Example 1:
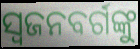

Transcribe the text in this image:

ସ୍ଵଜନବର୍ଗଙ୍କୁ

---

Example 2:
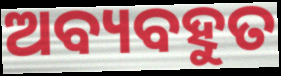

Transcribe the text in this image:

ଅବ୍ୟବହୁତ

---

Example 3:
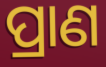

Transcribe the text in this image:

ପ୍ରାଣ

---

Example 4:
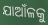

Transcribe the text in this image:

ଯାଆଁଳକୁ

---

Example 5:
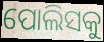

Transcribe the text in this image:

ପୋଲିସକୁ